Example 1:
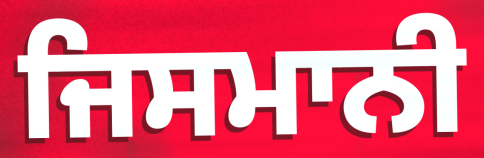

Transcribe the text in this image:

ਜਿਸਮਾਨੀ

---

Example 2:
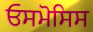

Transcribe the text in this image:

ਓਸਮੋਸਿਸ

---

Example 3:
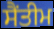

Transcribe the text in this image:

ਸੈਂਤੀਮ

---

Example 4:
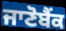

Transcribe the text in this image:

ਜਾਣੋਬੈਂਕ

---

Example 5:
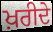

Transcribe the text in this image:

ਖ਼ਰੀਦੇ